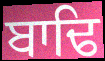
ਬਾਢਿ